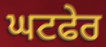
ਘਟਫੇਰ